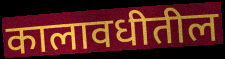
कालावधीतील